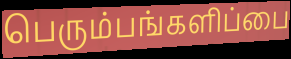
பெரும்பங்களிப்பை